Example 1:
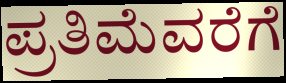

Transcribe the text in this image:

ಪ್ರತಿಮೆವರೆಗೆ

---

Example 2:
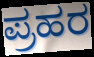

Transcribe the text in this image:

ಪ್ರಹರ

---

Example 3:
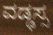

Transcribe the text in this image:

ವಡ್ಢಸ್ಸ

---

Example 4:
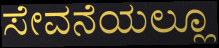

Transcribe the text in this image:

ಸೇವನೆಯಲ್ಲೂ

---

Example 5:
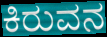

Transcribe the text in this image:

ಕಿರುವನ